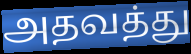
அதவத்து